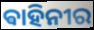
ଵାହିନୀର